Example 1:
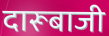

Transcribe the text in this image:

दारूबाजी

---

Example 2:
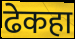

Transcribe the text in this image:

ढेकहा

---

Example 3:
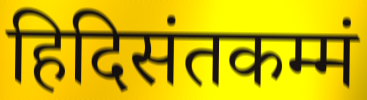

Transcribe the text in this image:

हिदिसंतकम्मं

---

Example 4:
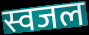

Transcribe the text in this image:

स्वजल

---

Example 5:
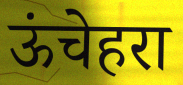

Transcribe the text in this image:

ऊंचेहरा